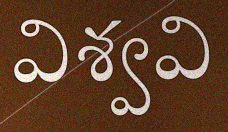
విశ్వవి